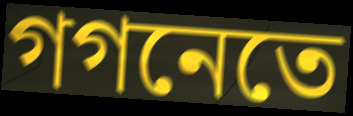
গগনেতে